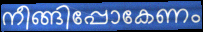
നീങ്ങിപ്പോകേണം